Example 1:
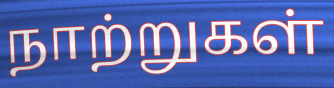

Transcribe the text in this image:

நாற்றுகள்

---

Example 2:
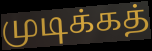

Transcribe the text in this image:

முடிக்கத்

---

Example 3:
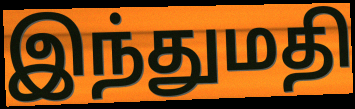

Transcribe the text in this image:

இந்துமதி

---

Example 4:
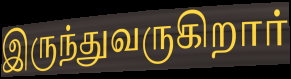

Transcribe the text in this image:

இருந்துவருகிறார்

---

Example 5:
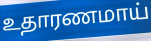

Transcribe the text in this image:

உதாரணமாய்